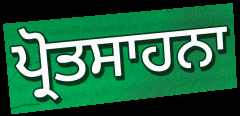
ਪ੍ਰੋਤਸਾਹਨਾ